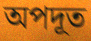
অপদূত